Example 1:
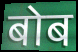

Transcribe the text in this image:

बोब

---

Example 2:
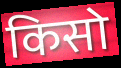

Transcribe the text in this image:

किसो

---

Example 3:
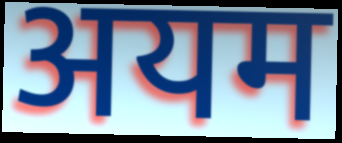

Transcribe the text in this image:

अयम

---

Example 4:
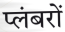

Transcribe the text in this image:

प्लंबरों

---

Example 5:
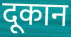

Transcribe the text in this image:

दूकान